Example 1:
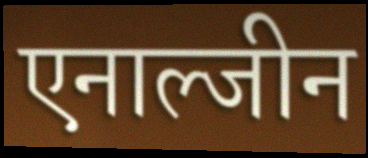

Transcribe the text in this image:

एनाल्जीन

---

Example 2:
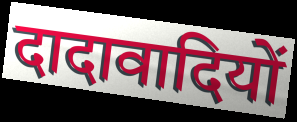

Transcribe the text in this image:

दादावादियों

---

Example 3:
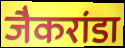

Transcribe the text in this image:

जैकरांडा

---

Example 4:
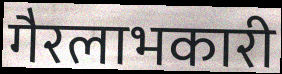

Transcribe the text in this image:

गैरलाभकारी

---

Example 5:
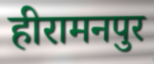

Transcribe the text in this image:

हीरामनपुर